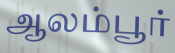
ஆலம்பூர்